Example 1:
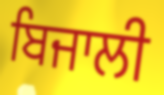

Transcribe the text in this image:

ਬਿਜਾਲੀ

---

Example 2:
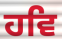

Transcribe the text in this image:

ਹਵਿ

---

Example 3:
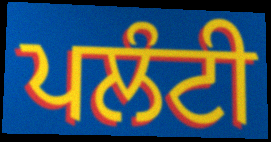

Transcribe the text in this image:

ਪਲੰਟੀ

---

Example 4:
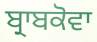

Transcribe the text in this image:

ਬ੍ਰਾਬਕੋਵਾ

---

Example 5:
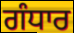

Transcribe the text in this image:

ਗੰਧਾਰ